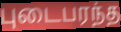
புடைபரந்த